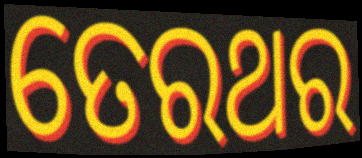
ତେରଥର